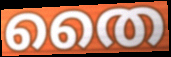
തൈ